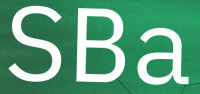
SBa